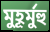
মুহূর্মুহু